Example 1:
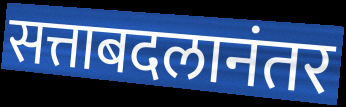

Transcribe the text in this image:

सत्ताबदलानंतर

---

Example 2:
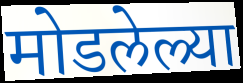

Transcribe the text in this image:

मोडलेल्या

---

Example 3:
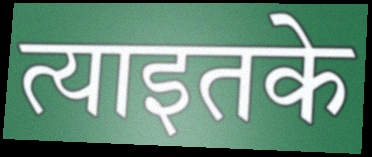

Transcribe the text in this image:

त्याइतके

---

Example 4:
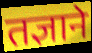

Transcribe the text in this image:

तज्ञाने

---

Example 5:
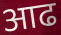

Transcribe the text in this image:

आढ